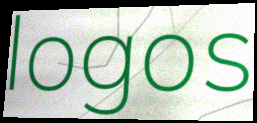
logos